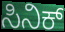
ಸಿನಿಕ್